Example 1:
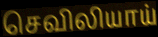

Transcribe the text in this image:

செவிலியாய்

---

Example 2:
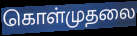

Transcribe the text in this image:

கொள்முதலை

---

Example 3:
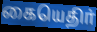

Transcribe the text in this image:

கையெதிர்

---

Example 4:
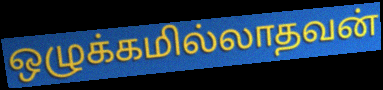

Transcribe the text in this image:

ஒழுக்கமில்லாதவன்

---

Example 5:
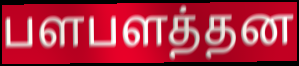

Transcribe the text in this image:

பளபளத்தன